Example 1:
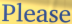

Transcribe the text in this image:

Please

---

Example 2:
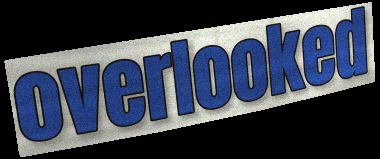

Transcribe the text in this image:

overlooked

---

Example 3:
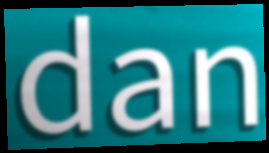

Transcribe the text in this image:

dan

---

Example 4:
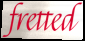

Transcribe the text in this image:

fretted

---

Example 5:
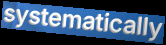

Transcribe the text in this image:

systematically